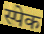
स्पेक